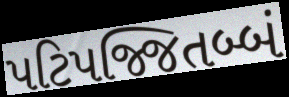
પટિપજ્જિતબ્બં